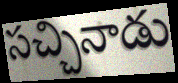
సచ్చినాడు